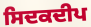
ਸਿਦਕਦੀਪ